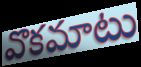
వొకమాటు